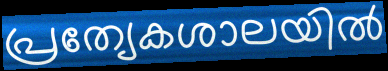
പ്രത്യേകശാലയിൽ